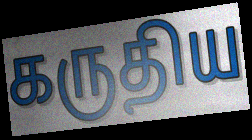
கருதிய